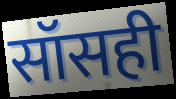
सॉसही